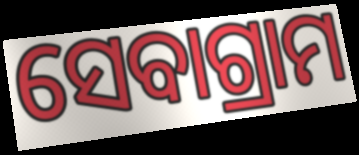
ସେବାଗ୍ରାମ